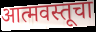
आत्मवस्तूचा